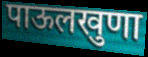
पाऊलखुणा